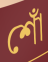
শোঁ